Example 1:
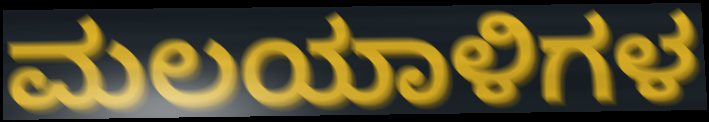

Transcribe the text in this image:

ಮಲಯಾಳಿಗಳ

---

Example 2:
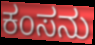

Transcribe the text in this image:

ಕಂಸನು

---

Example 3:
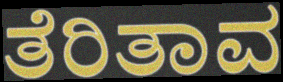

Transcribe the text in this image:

ತೆರಿತಾವ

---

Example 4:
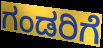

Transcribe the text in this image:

ಗಂಡರಿಗೆ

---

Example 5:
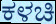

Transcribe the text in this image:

ಕಳಚಿ